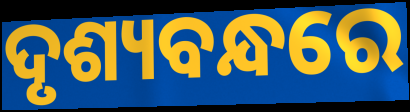
ଦୃଶ୍ୟବନ୍ଧରେ